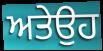
ਅਤੇਉਹ